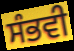
ਸੰਭਵੀ